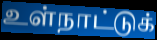
உள்நாட்டுக்